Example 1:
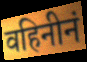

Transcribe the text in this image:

वहिनीनं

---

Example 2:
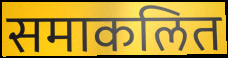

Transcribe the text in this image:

समाकलित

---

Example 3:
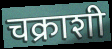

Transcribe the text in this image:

चक्राशी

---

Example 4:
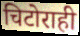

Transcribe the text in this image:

चिटोराही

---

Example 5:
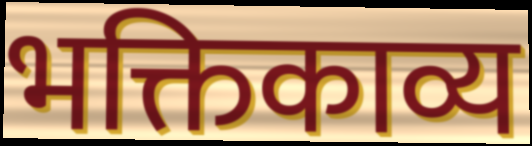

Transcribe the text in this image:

भक्तिकाव्य